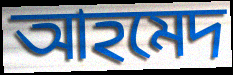
আহমেদ